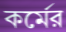
কর্মের